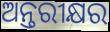
ଅନ୍ତରୀକ୍ଷର